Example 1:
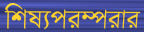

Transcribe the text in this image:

শিষ্যপরম্পরার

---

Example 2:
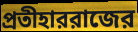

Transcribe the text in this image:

প্রতীহাররাজের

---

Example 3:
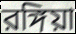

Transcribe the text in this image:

রঙ্গিয়া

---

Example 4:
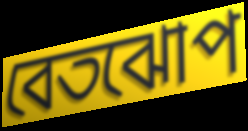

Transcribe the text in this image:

বেতঝোপ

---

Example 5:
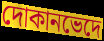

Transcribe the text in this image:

দোকানভেদে